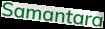
Samantara